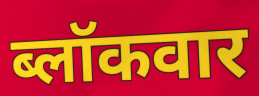
ब्लॉकवार